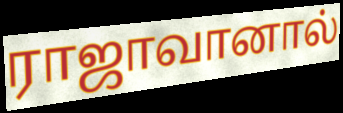
ராஜாவானால்